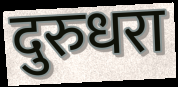
दुरुधरा